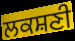
ਲਕਸ਼ਣੀ